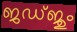
ജഡ്ജും